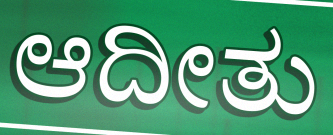
ಆದೀತು